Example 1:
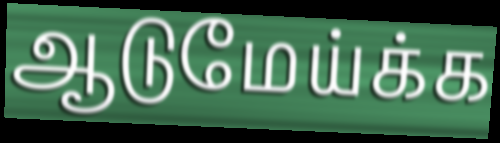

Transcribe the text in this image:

ஆடுமேய்க்க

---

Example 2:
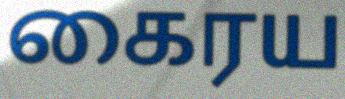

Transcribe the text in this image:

கைரய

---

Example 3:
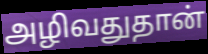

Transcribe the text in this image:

அழிவதுதான்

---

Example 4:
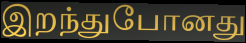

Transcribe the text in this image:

இறந்துபோனது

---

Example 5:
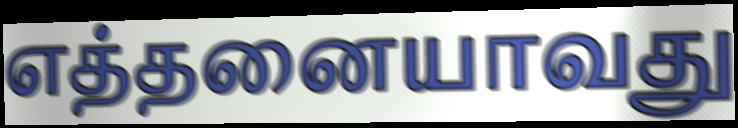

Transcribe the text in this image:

எத்தனையாவது